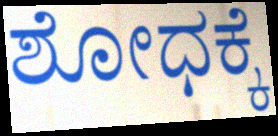
ಶೋಧಕ್ಕೆ